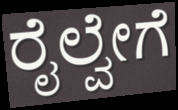
ರೈಲ್ವೇಗೆ